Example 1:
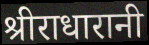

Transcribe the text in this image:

श्रीराधारानी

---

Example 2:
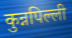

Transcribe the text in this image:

कुन्नपिल्ली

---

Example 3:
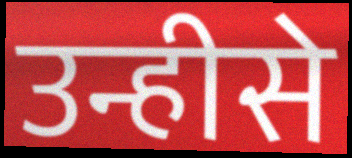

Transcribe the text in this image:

उन्हीसे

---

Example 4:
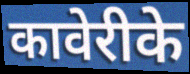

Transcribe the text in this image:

कावेरीके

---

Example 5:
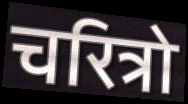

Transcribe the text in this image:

चरित्रो